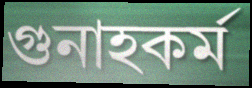
গুনাহকর্ম